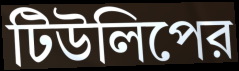
টিউলিপের